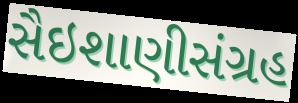
સૈઇશાણીસંગ્રહ